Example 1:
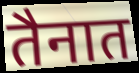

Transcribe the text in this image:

तैनात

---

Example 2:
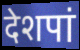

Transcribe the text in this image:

देशपां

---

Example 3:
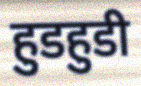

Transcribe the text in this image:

हुडहुडी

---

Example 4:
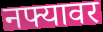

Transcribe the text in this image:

नफ्यावर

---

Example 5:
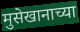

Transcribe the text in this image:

मुसेखानाच्या